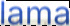
lama